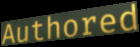
Authored